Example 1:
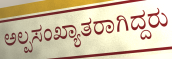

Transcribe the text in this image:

ಅಲ್ಪಸಂಖ್ಯಾತರಾಗಿದ್ದರು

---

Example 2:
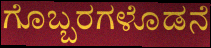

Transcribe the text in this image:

ಗೊಬ್ಬರಗಳೊಡನೆ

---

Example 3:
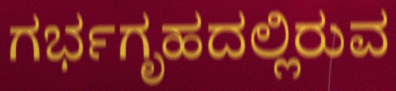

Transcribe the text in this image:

ಗರ್ಭಗೃಹದಲ್ಲಿರುವ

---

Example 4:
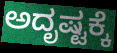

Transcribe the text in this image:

ಅದೃಷ್ಟಕ್ಕೆ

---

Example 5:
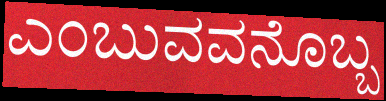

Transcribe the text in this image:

ಎಂಬುವವನೊಬ್ಬ